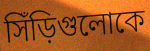
সিঁড়িগুলোকে